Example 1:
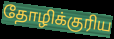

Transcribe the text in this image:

தோழிக்குரிய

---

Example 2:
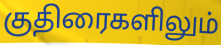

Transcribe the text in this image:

குதிரைகளிலும்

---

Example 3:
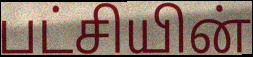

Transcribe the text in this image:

பட்சியின்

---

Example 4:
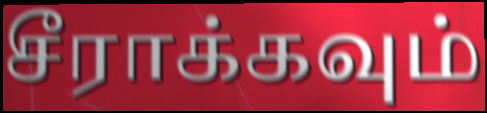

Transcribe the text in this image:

சீராக்கவும்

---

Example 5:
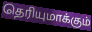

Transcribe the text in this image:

தெரியுமாக்கும்